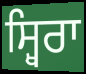
ਸ੍ਥਿਰਾ